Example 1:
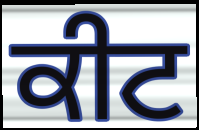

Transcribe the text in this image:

ਕੀਟ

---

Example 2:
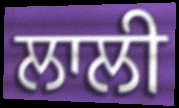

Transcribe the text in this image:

ਲਾਲੀ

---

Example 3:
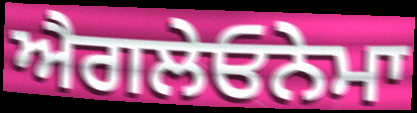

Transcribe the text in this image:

ਐਗਲੇਓਨੇਮਾ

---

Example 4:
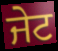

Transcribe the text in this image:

ਜੇਟ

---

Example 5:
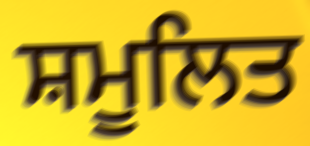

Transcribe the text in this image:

ਸ਼ਮੂਲਿਤ